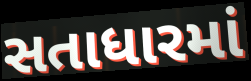
સતાધારમાં